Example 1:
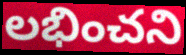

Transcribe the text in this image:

లభించని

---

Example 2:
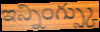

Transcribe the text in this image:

ఇన్నింగ్స్కు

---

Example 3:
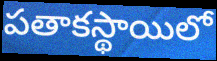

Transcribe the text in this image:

పతాకస్థాయిలో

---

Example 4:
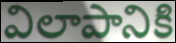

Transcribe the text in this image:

విలాపానికి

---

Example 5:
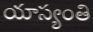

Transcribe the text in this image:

యాస్యంతి